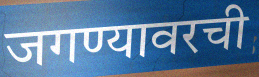
जगण्यावरची